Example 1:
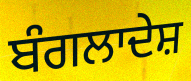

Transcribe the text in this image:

ਬੰਗਲਾਦੇਸ਼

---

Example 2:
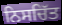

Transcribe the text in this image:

ਨਿਸਚਿੱਤ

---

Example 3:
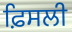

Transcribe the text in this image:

ਫ਼ਿਸਲੀ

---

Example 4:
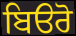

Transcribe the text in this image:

ਬਿੳਰੋ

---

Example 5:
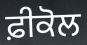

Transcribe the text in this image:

ਫ਼ੀਕੋਲ